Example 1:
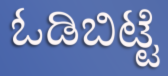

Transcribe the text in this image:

ಓಡಿಬಿಟ್ಟೆ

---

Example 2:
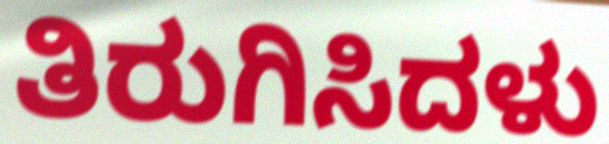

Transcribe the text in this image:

ತಿರುಗಿಸಿದಳು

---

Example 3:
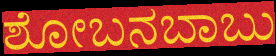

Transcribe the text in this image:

ಶೋಬನಬಾಬು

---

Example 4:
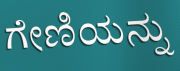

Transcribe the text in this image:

ಗೇಣಿಯನ್ನು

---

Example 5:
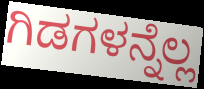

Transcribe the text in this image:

ಗಿಡಗಳನ್ನೆಲ್ಲ